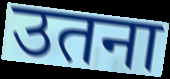
उतना